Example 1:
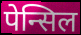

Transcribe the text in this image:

पेन्सिल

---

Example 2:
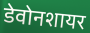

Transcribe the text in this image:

डेवोनशायर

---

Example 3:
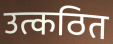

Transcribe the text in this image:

उत्कठित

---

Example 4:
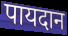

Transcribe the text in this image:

पायदान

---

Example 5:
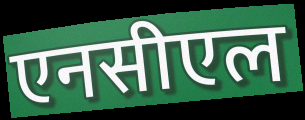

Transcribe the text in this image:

एनसीएल